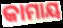
କାମାୟ